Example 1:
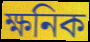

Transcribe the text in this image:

ক্ষনিক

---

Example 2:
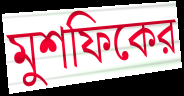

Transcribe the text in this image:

মুশফিকের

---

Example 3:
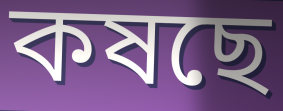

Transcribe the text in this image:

কষছে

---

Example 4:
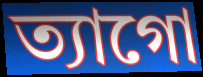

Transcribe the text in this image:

ত্যাগো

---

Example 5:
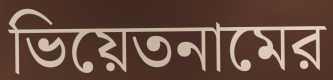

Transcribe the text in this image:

ভিয়েতনামের